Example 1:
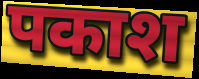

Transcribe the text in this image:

पकाश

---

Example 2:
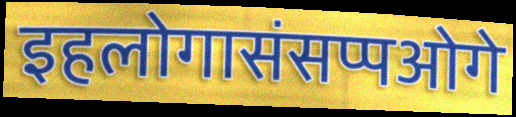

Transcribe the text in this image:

इहलोगासंसप्पओगे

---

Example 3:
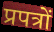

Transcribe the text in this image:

प्रपत्रों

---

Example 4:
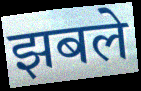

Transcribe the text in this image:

झबले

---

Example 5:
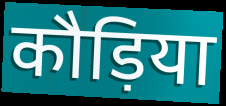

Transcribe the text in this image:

कौड़िया